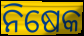
ନିଷେକ